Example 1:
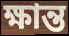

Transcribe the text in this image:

ক্ষান্ত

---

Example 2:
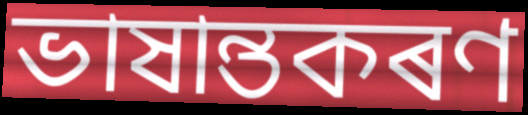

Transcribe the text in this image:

ভাষান্তকৰণ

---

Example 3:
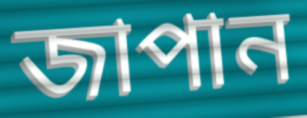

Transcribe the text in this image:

জাপান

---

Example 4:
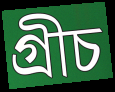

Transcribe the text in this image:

গ্ৰীচ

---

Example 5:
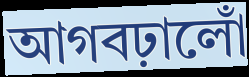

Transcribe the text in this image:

আগবঢ়ালোঁ